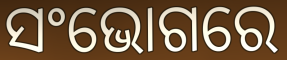
ସଂଭୋଗରେ